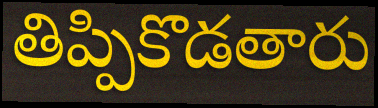
తిప్పికొడతారు